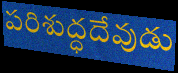
పరిశుద్ధదేవుడు